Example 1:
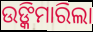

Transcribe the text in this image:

ଉଙ୍କିମାରିଲା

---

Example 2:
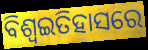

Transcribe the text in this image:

ବିଶ୍ଵଇତିହାସରେ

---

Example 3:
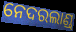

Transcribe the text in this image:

ନେଦରଲାଣ୍ଡ୍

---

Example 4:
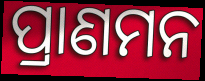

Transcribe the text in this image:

ପ୍ରାଣମନ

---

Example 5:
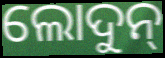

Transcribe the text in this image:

ଲୋଦୁନ୍